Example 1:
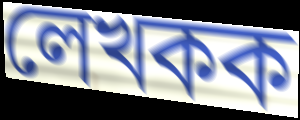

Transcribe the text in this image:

লেখকক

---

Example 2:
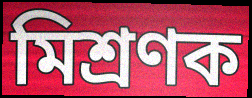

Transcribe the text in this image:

মিশ্ৰণক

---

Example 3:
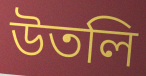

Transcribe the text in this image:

উতলি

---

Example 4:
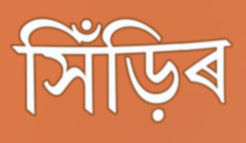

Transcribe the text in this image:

সিঁড়িৰ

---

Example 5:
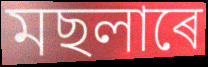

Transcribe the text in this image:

মছলাৰে